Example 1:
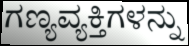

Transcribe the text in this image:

ಗಣ್ಯವ್ಯಕ್ತಿಗಳನ್ನು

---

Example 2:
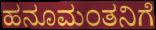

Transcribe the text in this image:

ಹನೂಮಂತನಿಗೆ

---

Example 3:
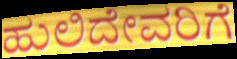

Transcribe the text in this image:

ಹುಲಿದೇವರಿಗೆ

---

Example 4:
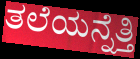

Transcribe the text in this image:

ತಲೆಯನ್ನೆತ್ತಿ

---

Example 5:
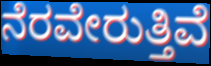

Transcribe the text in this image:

ನೆರವೇರುತ್ತಿವೆ